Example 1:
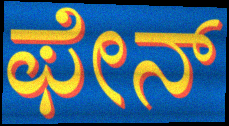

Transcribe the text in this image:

ಫೇನ್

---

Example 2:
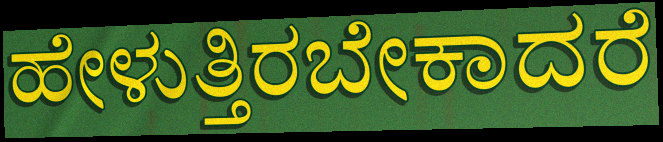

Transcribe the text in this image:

ಹೇಳುತ್ತಿರಬೇಕಾದರೆ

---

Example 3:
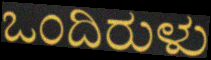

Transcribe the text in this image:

ಒಂದಿರುಳು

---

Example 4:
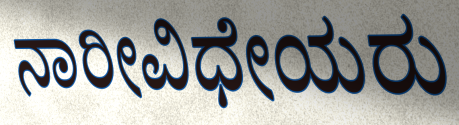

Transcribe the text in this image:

ನಾರೀವಿಧೇಯರು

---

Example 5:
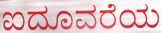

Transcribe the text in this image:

ಐದೂವರೆಯ